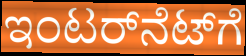
ಇಂಟರ್‌ನೆಟ್‌ಗೆ